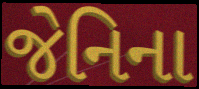
જેનિના